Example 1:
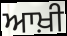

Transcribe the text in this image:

ਆਖ਼ੀ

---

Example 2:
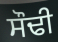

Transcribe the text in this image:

ਸੌਢੀ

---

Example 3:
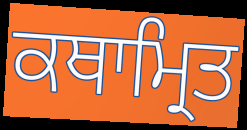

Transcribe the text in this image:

ਕਥਾਮ੍ਰਿਤ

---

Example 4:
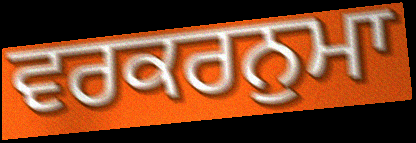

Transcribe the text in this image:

ਵਰਕਰਨੁਮਾ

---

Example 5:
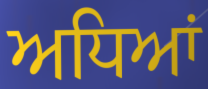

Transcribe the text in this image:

ਅਧਿਆਂ